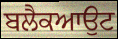
ਬਲੈਕਆਉਟ